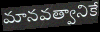
మానవత్వానికే